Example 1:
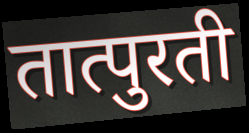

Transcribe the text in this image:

तात्पुरती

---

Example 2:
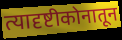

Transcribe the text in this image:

त्यादृष्टीकोनातून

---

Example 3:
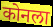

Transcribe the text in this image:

कोनला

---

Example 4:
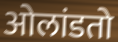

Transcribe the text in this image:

ओलांडतो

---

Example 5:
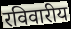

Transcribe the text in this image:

रविवारीय